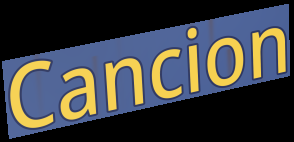
Cancion